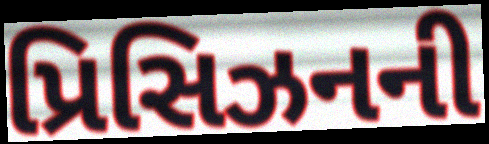
પ્રિસિઝનની